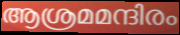
ആശ്രമമന്ദിരം